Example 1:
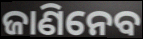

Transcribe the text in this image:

ଜାଣିନେବ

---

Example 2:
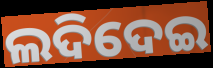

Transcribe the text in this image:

ଲଦିଦେଇ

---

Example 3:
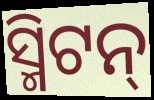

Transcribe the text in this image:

ସ୍ମିଟନ୍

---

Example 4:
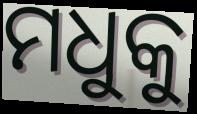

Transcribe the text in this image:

ମଧୁକୁ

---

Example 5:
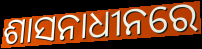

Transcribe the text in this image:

ଶାସନାଧୀନରେ